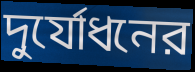
দুর্যোধনের